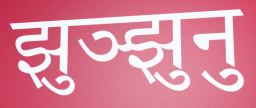
झुञ्झुनु